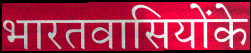
भारतवासियोंके